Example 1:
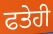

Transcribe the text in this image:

ਫਤੇਹੀ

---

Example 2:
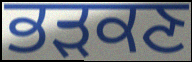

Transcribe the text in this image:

ਭੜਕਣ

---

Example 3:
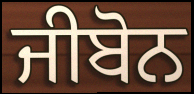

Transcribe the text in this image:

ਜੀਬੋਨ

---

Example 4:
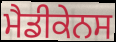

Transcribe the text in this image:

ਮੈਡੀਕੇਨਸ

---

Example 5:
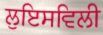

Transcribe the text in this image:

ਲੁਇਸਵਿਲੀ